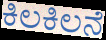
ಕಿಲಕಿಲನೆ